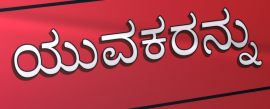
ಯುವಕರನ್ನು